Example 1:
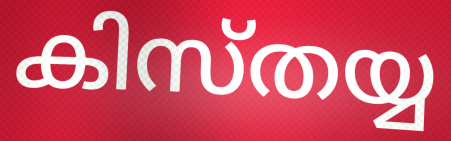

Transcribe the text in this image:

കിസ്തയ്യ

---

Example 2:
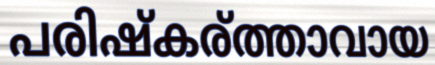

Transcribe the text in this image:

പരിഷ്കര്ത്താവായ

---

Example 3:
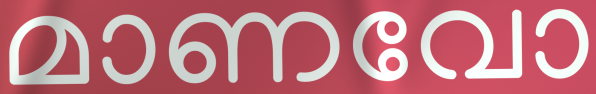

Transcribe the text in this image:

മാണവോ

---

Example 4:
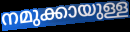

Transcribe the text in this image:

നമുക്കായുള്ള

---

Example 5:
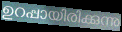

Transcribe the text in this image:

ഉറപ്പായിരിക്കുന്നു